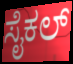
ಸೈಕಲ್